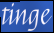
tinge